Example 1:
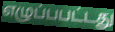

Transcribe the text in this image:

எழுப்பபட்டது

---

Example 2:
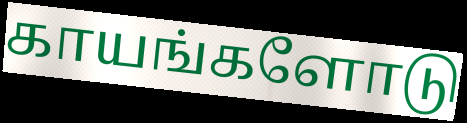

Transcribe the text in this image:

காயங்களோடு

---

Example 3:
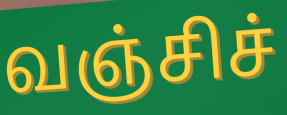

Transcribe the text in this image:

வஞ்சிச்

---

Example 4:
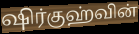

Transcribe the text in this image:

ஷிர்குஹ்வின்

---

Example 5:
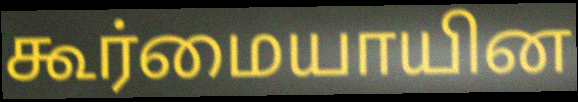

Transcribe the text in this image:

கூர்மையாயின